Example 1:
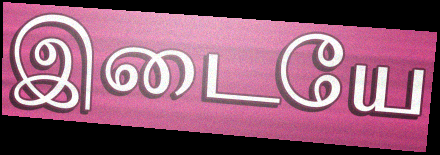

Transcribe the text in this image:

இடையே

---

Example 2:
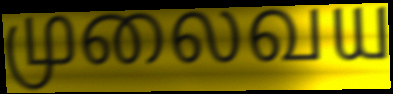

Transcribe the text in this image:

முலைவய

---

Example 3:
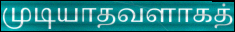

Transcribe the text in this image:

முடியாதவளாகத்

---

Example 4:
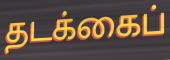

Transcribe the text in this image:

தடக்கைப்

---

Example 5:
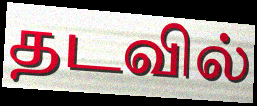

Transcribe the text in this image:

தடவில்